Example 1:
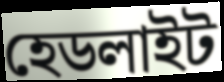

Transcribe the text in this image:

হেডলাইট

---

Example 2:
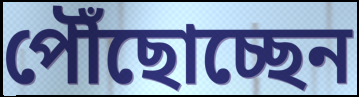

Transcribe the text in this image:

পৌঁছোচ্ছেন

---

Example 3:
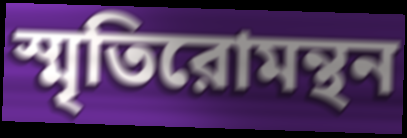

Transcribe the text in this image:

স্মৃতিরোমন্থন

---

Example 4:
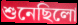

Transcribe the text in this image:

শুনেছিলো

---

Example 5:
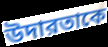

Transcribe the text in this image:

উদারতাকে